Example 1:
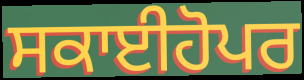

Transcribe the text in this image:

ਸਕਾਈਹੋਪਰ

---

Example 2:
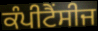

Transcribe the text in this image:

ਕੰਪੀਟੈਂਸੀਜ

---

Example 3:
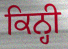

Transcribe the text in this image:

ਕਿਨ੍ਹੀ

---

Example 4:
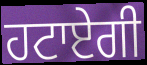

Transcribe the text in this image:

ਹਟਾਏਗੀ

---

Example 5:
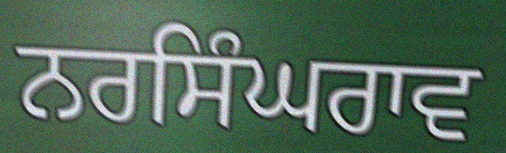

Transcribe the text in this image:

ਨਰਸਿੰਘਰਾਵ